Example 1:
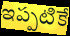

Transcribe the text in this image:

ఇప్పటికే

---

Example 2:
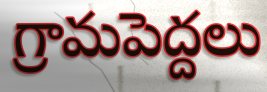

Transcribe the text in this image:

గ్రామపెద్దలు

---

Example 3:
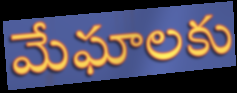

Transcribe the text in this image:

మేఘాలకు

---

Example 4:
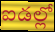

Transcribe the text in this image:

ఐడల్లో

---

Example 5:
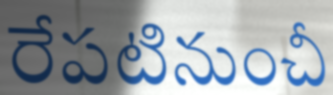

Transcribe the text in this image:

రేపటినుంచీ